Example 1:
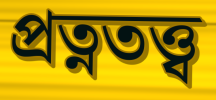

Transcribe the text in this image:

প্রত্নতত্ত্ব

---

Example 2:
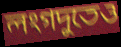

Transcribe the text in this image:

লংগদুতেও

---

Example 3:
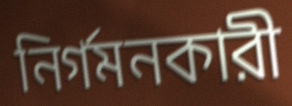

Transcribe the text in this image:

নির্গমনকারী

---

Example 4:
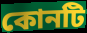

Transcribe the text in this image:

কোনটি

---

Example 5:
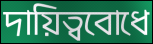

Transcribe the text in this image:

দায়িত্ববোধে